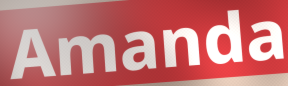
Amanda